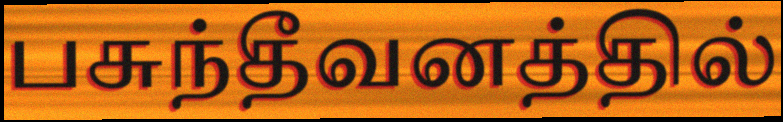
பசுந்தீவனத்தில்